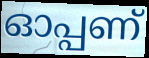
ഓപ്പണ്